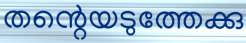
തന്റെയടുത്തേക്കു